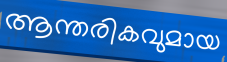
ആന്തരികവുമായ